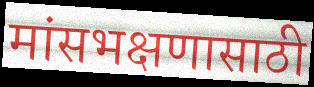
मांसभक्षणासाठी